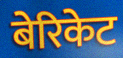
बेरिकेट